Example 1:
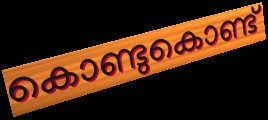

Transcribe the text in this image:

കൊണ്ടുകൊണ്ട്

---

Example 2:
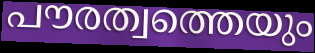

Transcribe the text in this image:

പൗരത്വത്തെയും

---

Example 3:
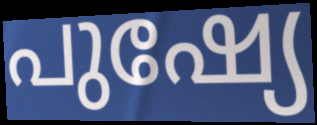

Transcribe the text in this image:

പുഷ്യേ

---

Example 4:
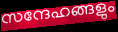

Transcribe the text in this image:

സന്ദേഹങ്ങളും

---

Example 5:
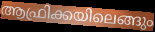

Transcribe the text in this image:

ആഫ്രിക്കയിലെങ്ങും